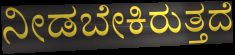
ನೀಡಬೇಕಿರುತ್ತದೆ